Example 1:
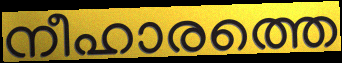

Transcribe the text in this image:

നീഹാരത്തെ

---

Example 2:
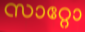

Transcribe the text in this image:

സാറ്റോ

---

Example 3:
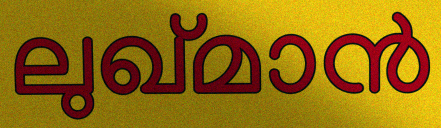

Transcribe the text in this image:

ലുഖ്മാൻ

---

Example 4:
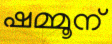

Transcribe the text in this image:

ഷമ്മൂന്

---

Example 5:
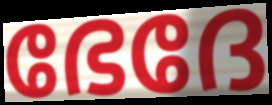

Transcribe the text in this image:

ഭേദേ